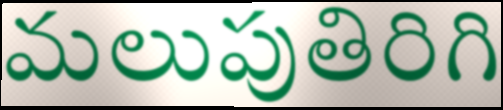
మలుపుతిరిగి